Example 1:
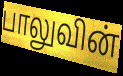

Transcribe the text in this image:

பாலுவின்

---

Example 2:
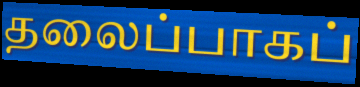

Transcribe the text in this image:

தலைப்பாகப்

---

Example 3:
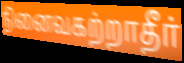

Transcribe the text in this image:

நினைவகற்றாதீர்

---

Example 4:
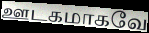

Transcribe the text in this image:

ஊடகமாகவே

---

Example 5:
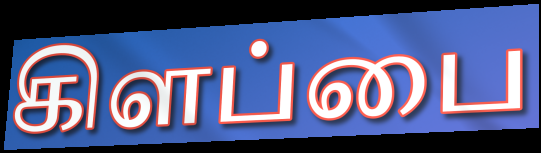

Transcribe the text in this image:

கிளப்பை